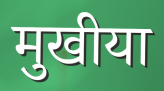
मुखीया